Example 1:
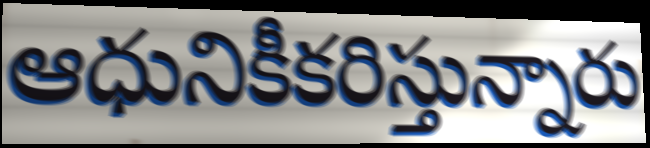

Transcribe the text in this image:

ఆధునికీకరిస్తున్నారు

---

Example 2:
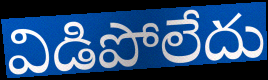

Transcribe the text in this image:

విడిపోలేదు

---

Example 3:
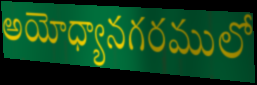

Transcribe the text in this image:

అయోధ్యానగరములో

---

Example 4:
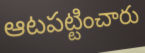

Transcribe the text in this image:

ఆటపట్టించారు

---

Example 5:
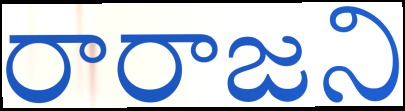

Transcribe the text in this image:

రారాజని